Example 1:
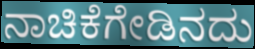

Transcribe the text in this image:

ನಾಚಿಕೆಗೇಡಿನದು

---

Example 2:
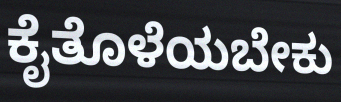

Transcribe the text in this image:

ಕೈತೊಳೆಯಬೇಕು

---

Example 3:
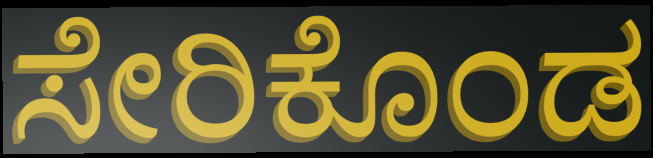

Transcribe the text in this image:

ಸೇರಿಕೊಂಡ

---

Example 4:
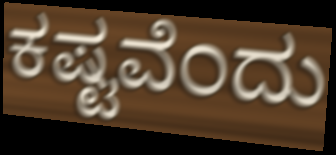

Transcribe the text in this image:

ಕಷ್ಟವೆಂದು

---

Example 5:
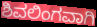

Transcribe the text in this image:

ಶಿವಲಿಂಗವಾಗಿ